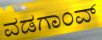
ವಡಗಾಂವ್